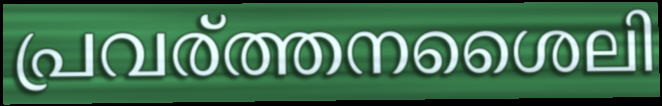
പ്രവര്ത്തനശൈലി